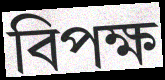
বিপক্ষ